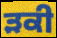
ੜਕੀ